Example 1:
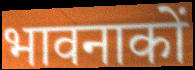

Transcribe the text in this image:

भावनाकों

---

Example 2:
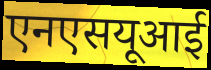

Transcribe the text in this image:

एनएसयूआई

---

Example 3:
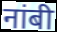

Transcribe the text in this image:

नांबी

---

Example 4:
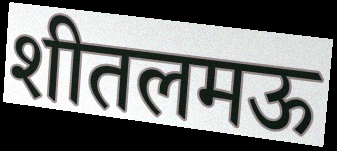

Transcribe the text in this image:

शीतलमऊ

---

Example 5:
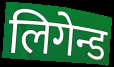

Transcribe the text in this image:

लिगेन्ड